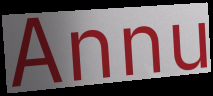
Annu